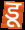
डू